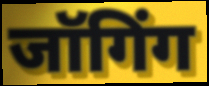
जॉगिंग